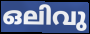
ഒലിവു